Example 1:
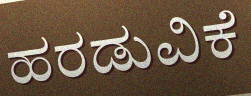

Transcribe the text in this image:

ಹರಡುವಿಕೆ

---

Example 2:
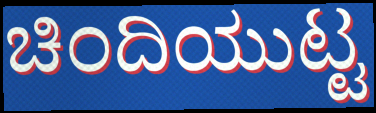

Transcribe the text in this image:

ಚಿಂದಿಯುಟ್ಟ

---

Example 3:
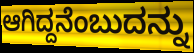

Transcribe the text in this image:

ಆಗಿದ್ದನೆಂಬುದನ್ನು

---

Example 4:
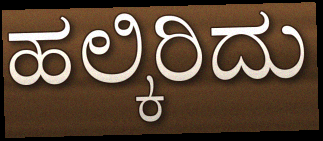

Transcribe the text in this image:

ಹಲ್ಕಿರಿದು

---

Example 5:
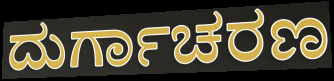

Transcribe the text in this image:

ದುರ್ಗಾಚರಣ